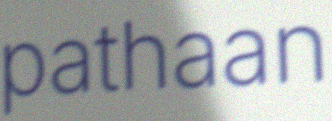
pathaan